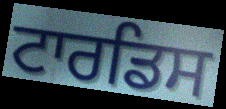
ਟਾਰਡਿਸ